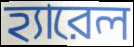
হ্যারেল